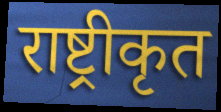
राष्ट्रीकृत